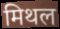
मिथल